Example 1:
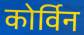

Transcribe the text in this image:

कोर्विन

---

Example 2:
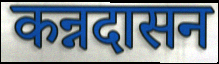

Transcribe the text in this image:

कन्नदासन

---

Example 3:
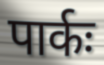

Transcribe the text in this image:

पार्कः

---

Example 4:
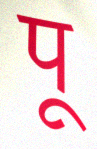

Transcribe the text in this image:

पू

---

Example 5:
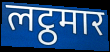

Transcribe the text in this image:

लट्ठमार